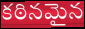
కఠినమైన